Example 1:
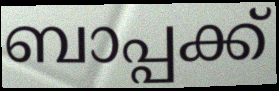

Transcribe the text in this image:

ബാപ്പക്ക്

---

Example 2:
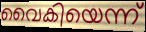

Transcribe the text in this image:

വൈകിയെന്ന്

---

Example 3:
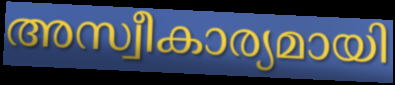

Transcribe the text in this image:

അസ്വീകാര്യമായി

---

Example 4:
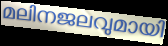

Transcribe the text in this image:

മലിനജലവുമായി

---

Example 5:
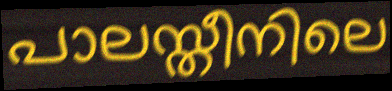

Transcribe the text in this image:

പാലസ്തീനിലെ